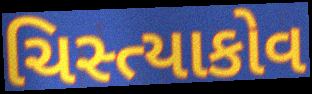
ચિસ્ત્યાકોવ